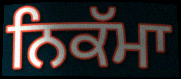
ਨਿਕੱਮਾ